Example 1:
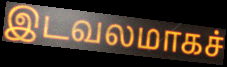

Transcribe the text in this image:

இடவலமாகச்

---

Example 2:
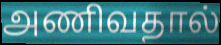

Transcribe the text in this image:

அணிவதால்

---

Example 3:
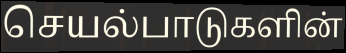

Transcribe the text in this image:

செயல்பாடுகளின்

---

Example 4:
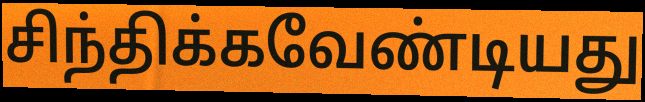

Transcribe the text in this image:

சிந்திக்கவேண்டியது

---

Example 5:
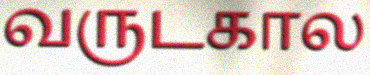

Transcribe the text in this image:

வருடகால